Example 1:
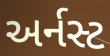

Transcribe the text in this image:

અર્નસ્ટ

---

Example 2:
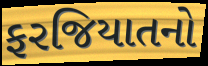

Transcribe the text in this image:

ફરજિયાતનો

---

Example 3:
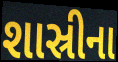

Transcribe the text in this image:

શાસ્રીના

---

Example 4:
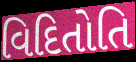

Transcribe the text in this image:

વિદિતોતિ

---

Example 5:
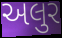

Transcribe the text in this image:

અલુર